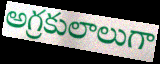
అగ్రకులాలుగా